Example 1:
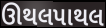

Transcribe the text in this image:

ઊથલપાથલ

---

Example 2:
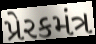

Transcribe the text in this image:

પ્રેરકમંત્ર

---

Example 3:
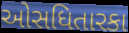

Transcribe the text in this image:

ઓસધિતારકા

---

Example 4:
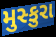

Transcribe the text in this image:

મુસ્કુરા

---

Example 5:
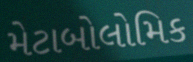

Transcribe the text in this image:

મેટાબોલોમિક